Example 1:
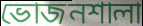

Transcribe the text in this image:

ভোজনশালা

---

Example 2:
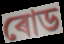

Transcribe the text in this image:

ৰোড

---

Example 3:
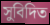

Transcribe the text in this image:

সুবিদিত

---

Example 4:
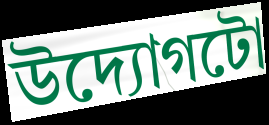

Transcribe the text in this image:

উদ্যোগটো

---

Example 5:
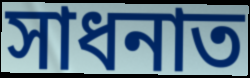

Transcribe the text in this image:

সাধনাত